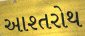
આશ્તરોથ